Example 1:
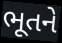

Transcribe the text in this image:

ભૂતને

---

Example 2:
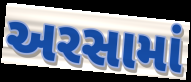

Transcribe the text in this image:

અરસામાં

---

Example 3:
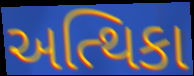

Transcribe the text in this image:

અત્થિકા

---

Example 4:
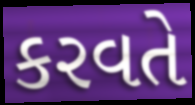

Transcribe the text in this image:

કરવતે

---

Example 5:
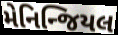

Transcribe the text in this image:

મેનિન્જિયલ